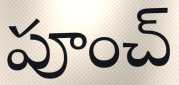
పూంచ్